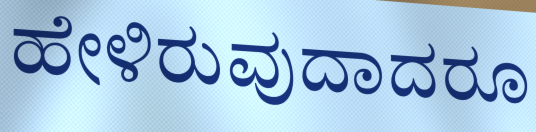
ಹೇಳಿರುವುದಾದರೂ